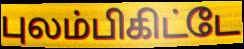
புலம்பிகிட்டே